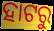
ହାଟରୁ